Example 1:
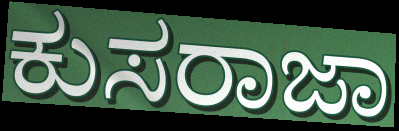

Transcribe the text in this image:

ಕುಸರಾಜಾ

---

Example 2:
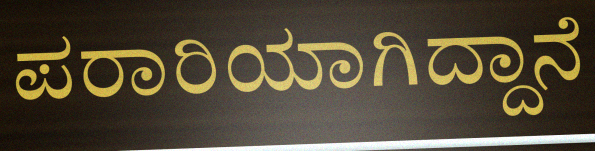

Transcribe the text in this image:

ಪರಾರಿಯಾಗಿದ್ದಾನೆ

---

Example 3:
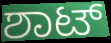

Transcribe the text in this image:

ಶಾಟ್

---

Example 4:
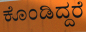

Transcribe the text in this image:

ಕೊಂಡಿದ್ದರೆ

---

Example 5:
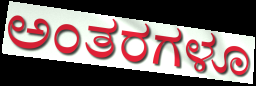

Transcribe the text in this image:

ಅಂತರಗಳೂ